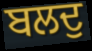
ਬਲਦੁ